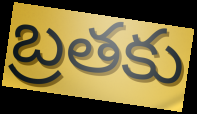
బ్రతకు